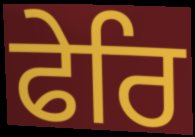
ਫੇਰਿ